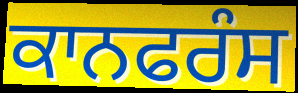
ਕਾਨਫਰੰਸ